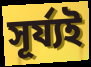
সূৰ্য্যই